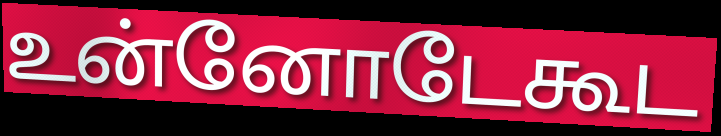
உன்னோடேகூட